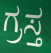
ಗ್ರಸ್ತ